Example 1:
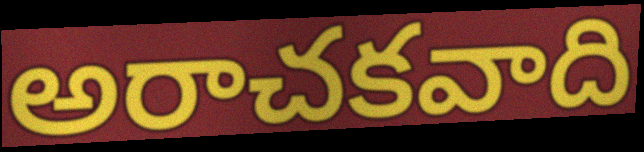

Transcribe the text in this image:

అరాచకవాది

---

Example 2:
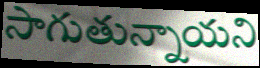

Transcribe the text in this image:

సాగుతున్నాయని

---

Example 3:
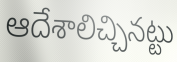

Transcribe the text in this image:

ఆదేశాలిచ్చినట్టు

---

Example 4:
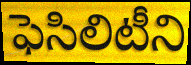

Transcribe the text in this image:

ఫెసిలిటీని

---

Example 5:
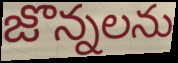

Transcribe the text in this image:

జొన్నలను